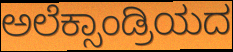
ಅಲೆಕ್ಸಾಂಡ್ರಿಯದ